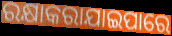
ରକ୍ଷାକରାଯାଇପାରେ